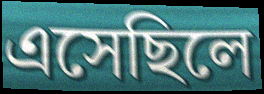
এসেছিলে